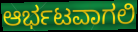
ಆರ್ಭಟವಾಗಲಿ